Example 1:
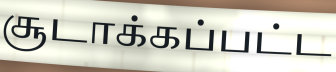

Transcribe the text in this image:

சூடாக்கப்பட்ட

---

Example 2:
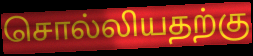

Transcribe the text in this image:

சொல்லியதற்கு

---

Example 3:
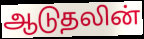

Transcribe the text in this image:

ஆடுதலின்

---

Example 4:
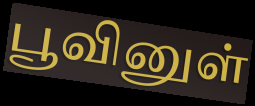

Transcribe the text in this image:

பூவினுள்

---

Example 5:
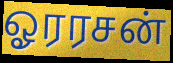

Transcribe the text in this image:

ஓரரசன்